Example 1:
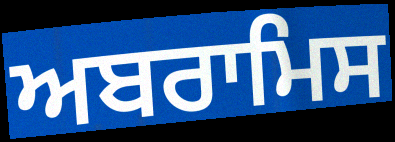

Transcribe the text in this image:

ਅਬਰਾਮਿਸ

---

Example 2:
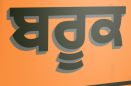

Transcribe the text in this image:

ਬਰੂਕ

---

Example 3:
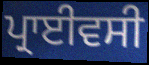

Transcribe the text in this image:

ਪ੍ਰਾਈਵਸੀ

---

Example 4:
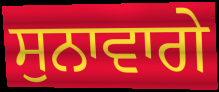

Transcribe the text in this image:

ਸੁਨਾਵਾਗੇ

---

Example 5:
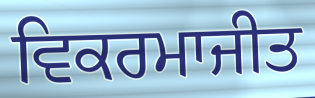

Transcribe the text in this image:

ਵਿਕਰਮਾਜੀਤ